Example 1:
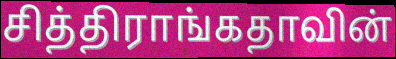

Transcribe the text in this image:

சித்திராங்கதாவின்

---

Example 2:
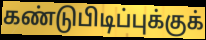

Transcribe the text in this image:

கண்டுபிடிப்புக்குக்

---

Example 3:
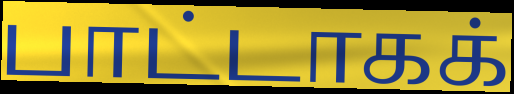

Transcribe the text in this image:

பாட்டாகக்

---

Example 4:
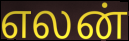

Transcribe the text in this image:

எலன்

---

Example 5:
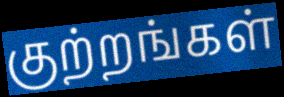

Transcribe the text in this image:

குற்றங்கள்